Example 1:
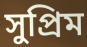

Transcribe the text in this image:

সুপ্রিম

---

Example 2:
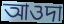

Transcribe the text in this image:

আওদা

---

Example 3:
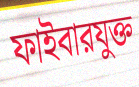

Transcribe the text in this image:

ফাইবারযুক্ত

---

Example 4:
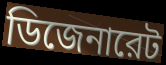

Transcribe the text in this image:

ডিজেনারেট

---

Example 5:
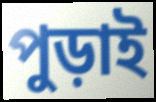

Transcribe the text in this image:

পুড়াই